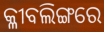
କ୍ଳୀବଲିଙ୍ଗରେ